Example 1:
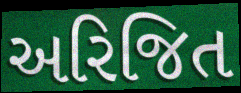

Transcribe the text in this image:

અરિજિત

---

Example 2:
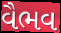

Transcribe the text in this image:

વૈભવ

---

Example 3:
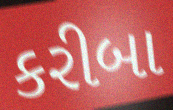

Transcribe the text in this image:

કરીબા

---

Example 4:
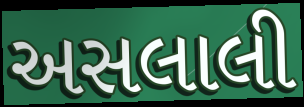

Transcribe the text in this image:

અસલાલી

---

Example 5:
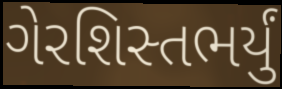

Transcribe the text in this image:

ગેરશિસ્તભર્યું